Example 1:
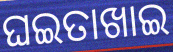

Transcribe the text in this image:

ଘଇତାଖାଇ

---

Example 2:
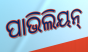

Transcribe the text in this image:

ପାଭିଲିୟନ୍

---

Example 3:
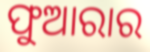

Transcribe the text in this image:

ଫୁଆରାର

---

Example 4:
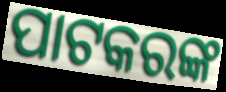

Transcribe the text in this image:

ପାଟକରଙ୍କ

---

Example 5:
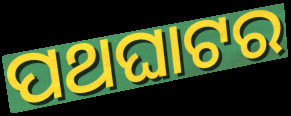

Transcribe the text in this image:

ପଥଘାଟର